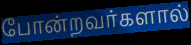
போன்றவர்களால்